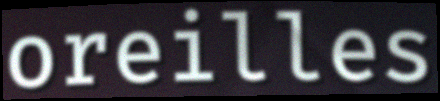
oreilles